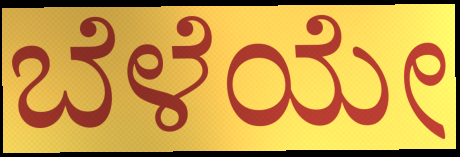
ಬೆಳೆಯೇ